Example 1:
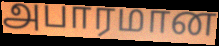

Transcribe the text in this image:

அபாரமான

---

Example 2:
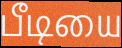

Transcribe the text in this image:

பீடியை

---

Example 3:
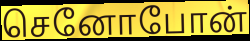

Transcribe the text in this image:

செனோபோன்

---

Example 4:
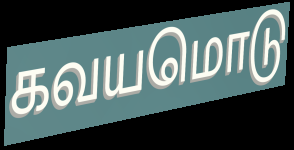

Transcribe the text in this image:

கவயமொடு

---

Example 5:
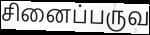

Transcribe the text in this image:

சினைப்பருவ